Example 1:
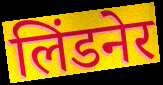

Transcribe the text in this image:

लिंडनेर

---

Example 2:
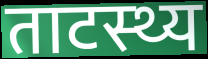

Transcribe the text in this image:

ताटस्थ्य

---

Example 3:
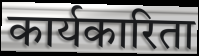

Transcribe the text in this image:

कार्यकारिता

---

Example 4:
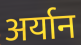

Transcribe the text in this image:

अर्यान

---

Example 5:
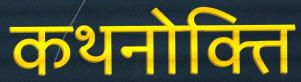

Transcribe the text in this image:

कथनोक्ति